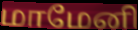
மாமேனி